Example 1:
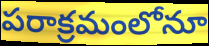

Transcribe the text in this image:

పరాక్రమంలోనూ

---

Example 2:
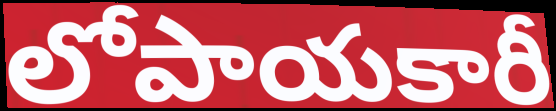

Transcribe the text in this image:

లోపాయకారీ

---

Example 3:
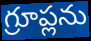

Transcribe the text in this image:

గ్రూప్లను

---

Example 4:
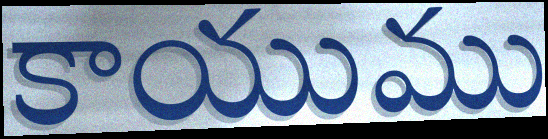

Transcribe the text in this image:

కాయుము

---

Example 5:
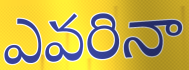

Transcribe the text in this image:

ఎవరినా